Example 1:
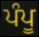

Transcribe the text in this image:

ਪੰਪੂ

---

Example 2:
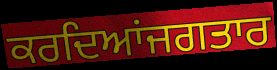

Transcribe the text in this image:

ਕਰਦਿਆਂਜਗਤਾਰ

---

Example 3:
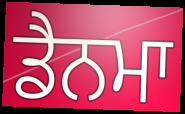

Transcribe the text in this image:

ਡੈਨਮਾ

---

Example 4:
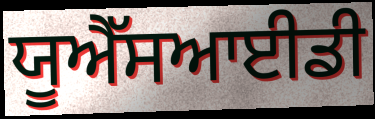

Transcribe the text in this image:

ਯੂਐੱਸਆਈਡੀ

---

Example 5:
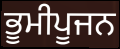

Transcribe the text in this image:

ਭੂਮੀਪੂਜਨ